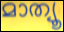
മാത്യൂ